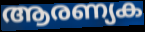
ആരണ്യക